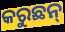
କରୁଛନ୍